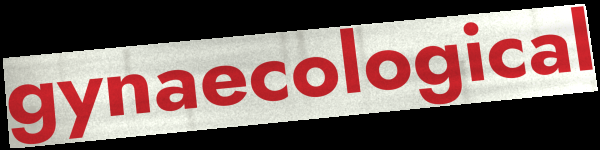
gynaecological